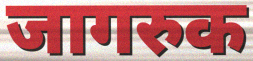
जागरुक